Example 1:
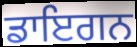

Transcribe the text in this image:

ਡਾਇਗਨ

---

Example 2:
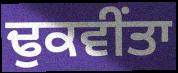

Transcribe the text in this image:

ਢੁਕਵੀਂਤਾ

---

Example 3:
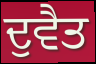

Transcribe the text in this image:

ਦੁਵੈਤ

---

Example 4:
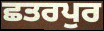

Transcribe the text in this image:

ਛਤਰਪੁਰ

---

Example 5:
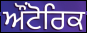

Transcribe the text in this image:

ਔਂਟੋਰਿਕ